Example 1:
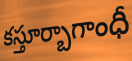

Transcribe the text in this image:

కస్తూర్బాగాంధీ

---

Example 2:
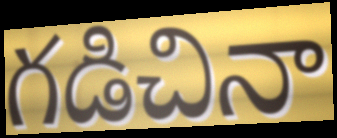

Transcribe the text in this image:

గడిచినా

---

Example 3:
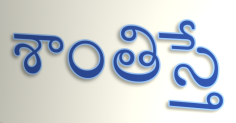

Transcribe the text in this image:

శాంతిస్తే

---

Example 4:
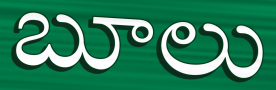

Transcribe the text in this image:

బూలు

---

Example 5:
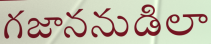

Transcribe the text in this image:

గజాననుడిలా